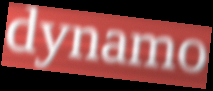
dynamo